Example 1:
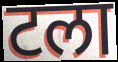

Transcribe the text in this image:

टला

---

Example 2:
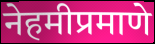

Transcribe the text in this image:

नेहमीप्रमाणे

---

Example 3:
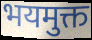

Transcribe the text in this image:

भयमुक्त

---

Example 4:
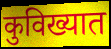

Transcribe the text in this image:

कुविख्यात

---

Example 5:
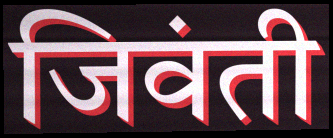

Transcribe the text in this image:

जिवंती